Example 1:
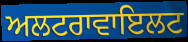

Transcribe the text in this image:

ਅਲਟਰਾਵਾਇਲਟ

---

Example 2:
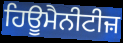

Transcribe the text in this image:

ਹਿਊਮੈਨੀਟੀਜ਼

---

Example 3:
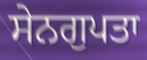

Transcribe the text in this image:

ਸੇਨਗੁਪਤਾ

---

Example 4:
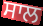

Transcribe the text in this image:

ਸਾਲ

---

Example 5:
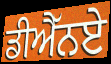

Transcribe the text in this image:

ਡੀਐੱਨਏ